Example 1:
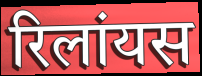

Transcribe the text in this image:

रिलांयस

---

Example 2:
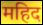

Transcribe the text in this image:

महिद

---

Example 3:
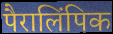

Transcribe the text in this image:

पैरालिंपिक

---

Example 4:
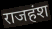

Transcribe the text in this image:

राजहंश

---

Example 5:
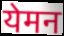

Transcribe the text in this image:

येमन